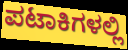
ಪಟಾಕಿಗಳಲ್ಲಿ